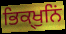
ਭਿਕ੍ਖੁਨਿਂ